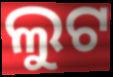
ଲୁଟ